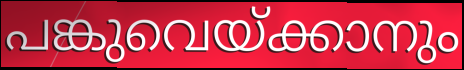
പങ്കുവെയ്ക്കാനും